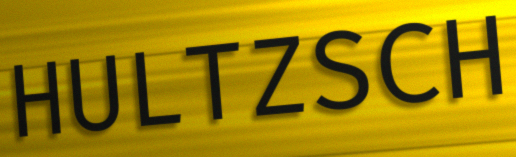
HULTZSCH